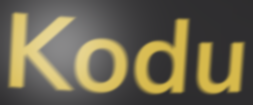
Kodu